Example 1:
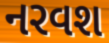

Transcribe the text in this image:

નરવશ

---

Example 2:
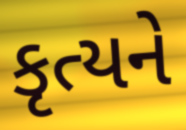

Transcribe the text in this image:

કૃત્યને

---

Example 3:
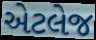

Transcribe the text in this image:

એટલેજ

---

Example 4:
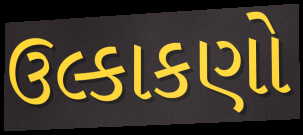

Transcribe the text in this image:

ઉલ્કાકણો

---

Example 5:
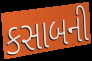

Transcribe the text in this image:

કસાબની